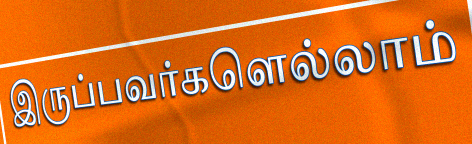
இருப்பவர்களெல்லாம்